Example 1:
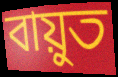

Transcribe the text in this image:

বায়ুত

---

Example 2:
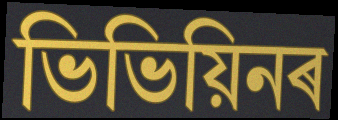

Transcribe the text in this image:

ভিভিয়িনৰ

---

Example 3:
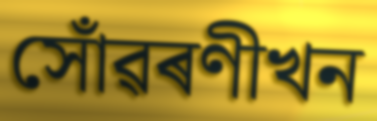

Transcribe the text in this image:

সোঁৱৰণীখন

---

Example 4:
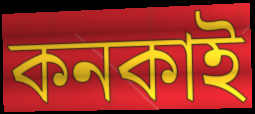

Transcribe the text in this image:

কনকাই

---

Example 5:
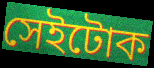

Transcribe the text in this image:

সেইটোক